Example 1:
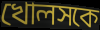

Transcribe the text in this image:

খোলসকে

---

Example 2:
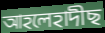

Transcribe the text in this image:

আহলেহাদীছ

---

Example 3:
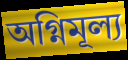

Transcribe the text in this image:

অগ্নিমূল্য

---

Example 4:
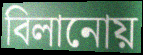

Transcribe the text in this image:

বিলানোয়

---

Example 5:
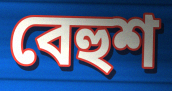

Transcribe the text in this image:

বেহুশ